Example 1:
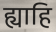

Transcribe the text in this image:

ह्याहि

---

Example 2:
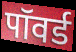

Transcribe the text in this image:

पॉवर्ड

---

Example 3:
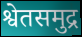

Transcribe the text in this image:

श्वेतसमुद्र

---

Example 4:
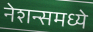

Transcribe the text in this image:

नेशन्समध्ये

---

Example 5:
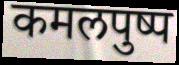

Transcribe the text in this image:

कमलपुष्प